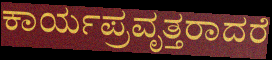
ಕಾರ್ಯಪ್ರವೃತ್ತರಾದರೆ